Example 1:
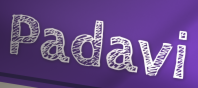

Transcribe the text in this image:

Padavi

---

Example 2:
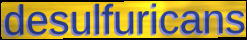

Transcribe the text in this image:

desulfuricans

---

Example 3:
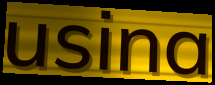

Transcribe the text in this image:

usina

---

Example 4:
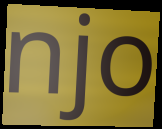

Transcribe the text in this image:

njo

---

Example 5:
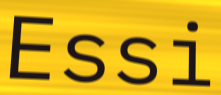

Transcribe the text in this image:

Essi